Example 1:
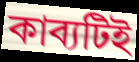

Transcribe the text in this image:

কাব্যটিই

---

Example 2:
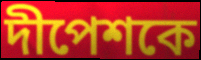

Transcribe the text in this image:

দীপেশকে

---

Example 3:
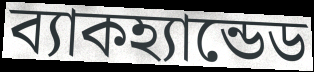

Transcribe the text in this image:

ব্যাকহ্যান্ডেড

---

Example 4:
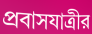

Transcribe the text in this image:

প্রবাসযাত্রীর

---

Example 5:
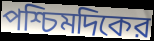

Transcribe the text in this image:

পশ্চিমদিকের